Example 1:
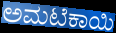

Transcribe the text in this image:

ಅಮಟೆಕಾಯಿ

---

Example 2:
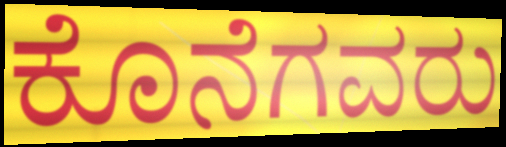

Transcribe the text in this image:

ಕೊನೆಗವರು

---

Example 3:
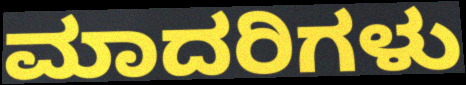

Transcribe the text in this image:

ಮಾದರಿಗಳು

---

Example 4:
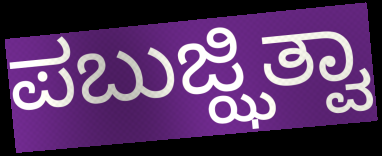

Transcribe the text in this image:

ಪಬುಜ್ಝಿತ್ವಾ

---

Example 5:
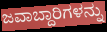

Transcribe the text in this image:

ಜವಾಬ್ದಾರಿಗಳನ್ನು